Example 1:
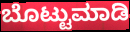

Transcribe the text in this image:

ಬೊಟ್ಟುಮಾಡಿ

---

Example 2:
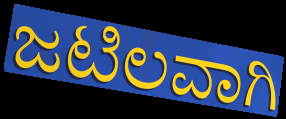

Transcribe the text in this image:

ಜಟಿಲವಾಗಿ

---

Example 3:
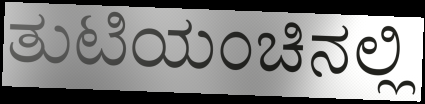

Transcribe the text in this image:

ತುಟಿಯಂಚಿನಲ್ಲಿ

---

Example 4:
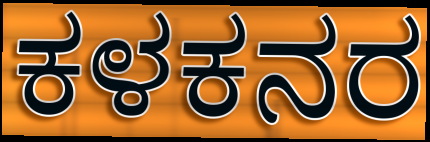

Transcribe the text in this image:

ಕಳಕನರ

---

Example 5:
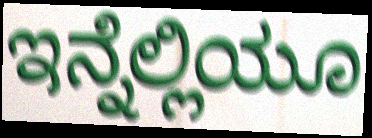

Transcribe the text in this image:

ಇನ್ನೆಲ್ಲಿಯೂ